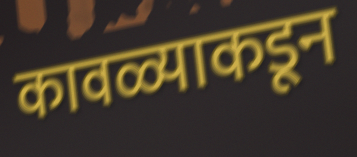
कावळ्याकडून